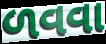
ળવવા